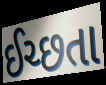
ઈચ્છતા